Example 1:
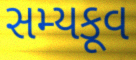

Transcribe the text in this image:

સમ્યકૂવ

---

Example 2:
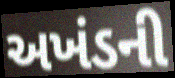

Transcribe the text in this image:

અખંડની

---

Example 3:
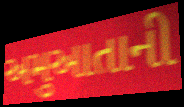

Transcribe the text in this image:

અમુઆતાની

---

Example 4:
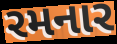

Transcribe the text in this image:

રમનાર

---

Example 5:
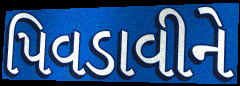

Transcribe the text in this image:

પિવડાવીને